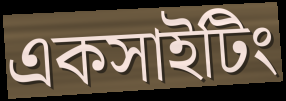
একসাইটিং